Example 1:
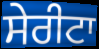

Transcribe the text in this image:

ਸੇਰੀਟਾ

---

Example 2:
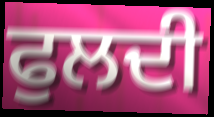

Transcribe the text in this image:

ਫੁਲਦੀ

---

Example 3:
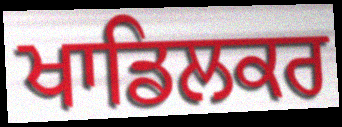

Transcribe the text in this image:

ਖਾਡਿਲਕਰ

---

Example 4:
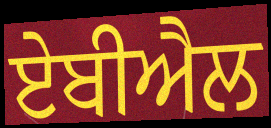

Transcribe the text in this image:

ਏਬੀਐਲ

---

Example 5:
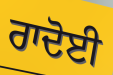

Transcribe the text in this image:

ਰਾਦੋਈ